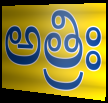
అత్రిః